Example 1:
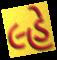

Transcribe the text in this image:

લ્હે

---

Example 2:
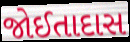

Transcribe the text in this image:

જોઈતાદાસ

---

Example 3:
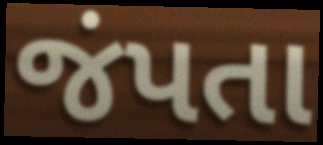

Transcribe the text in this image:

જંપતા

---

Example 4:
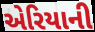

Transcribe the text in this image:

એરિયાની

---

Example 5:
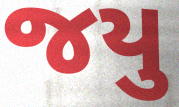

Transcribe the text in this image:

જયુ